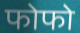
फोफो